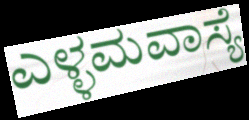
ಎಳ್ಳಮವಾಸ್ಯೆ